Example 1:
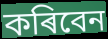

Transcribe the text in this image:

কৰিবেন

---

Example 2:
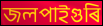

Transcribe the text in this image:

জলপাইগুৰি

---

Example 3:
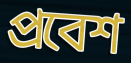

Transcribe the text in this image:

প্ৰবেশ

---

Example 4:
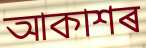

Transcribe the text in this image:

আকাশৰ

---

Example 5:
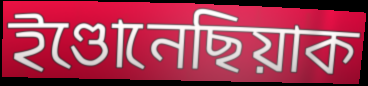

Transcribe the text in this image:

ইণ্ডোনেছিয়াক